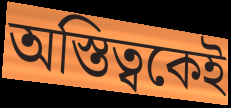
অস্তিত্বকেই